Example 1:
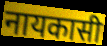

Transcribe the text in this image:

नायकासी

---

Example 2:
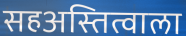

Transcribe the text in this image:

सहअस्तित्वाला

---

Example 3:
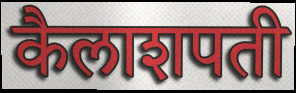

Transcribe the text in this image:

कैलाशपती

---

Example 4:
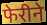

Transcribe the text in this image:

फेरीने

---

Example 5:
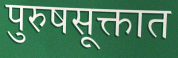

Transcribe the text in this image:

पुरुषसूक्तात